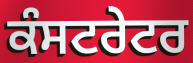
ਕੰਸਟਰੇਟਰ